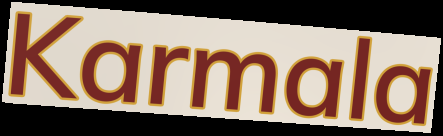
Karmala